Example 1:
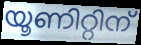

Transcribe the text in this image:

യൂണിറ്റിന്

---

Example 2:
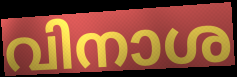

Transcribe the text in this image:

വിനാശ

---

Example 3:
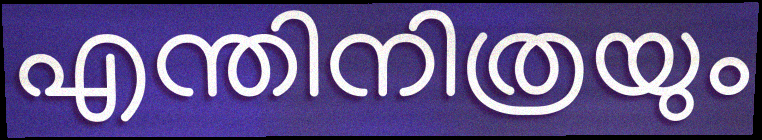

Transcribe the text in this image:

എന്തിനിത്രയും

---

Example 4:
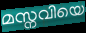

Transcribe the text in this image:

മസ്നവിയെ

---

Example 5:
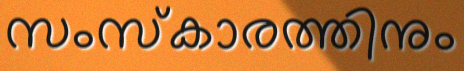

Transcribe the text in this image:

സംസ്കാരത്തിനും